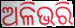
ଅଳିଭରି